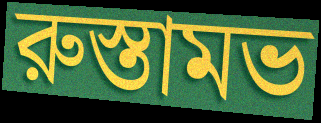
রুস্তামভ